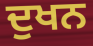
ਦੁਖਨ